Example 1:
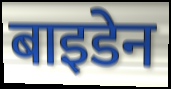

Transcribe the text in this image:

बाइडेन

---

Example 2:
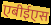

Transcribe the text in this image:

एबीईएस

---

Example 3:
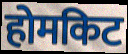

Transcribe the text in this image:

होमकिट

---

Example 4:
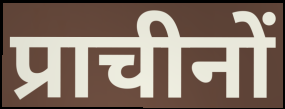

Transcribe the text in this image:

प्राचीनों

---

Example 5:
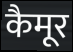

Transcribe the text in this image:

कैमूर